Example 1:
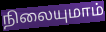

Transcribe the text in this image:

நிலையுமாம்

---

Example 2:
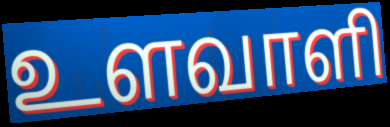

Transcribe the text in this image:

உளவாளி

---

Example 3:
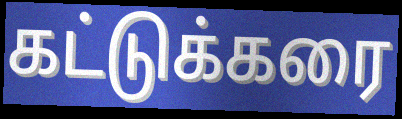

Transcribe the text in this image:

கட்டுக்கரை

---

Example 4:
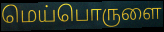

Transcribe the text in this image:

மெய்பொருளை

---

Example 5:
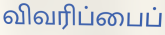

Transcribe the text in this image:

விவரிப்பைப்